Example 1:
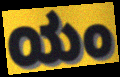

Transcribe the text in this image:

ಯಂ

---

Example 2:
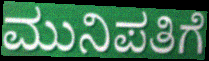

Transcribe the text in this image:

ಮುನಿಪತಿಗೆ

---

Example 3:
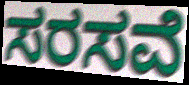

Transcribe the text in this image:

ಸರಸವೆ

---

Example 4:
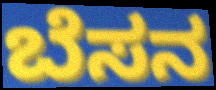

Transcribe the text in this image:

ಬೆಸನ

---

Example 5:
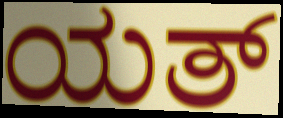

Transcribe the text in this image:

ಯತ್